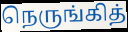
நெருங்கித்